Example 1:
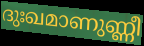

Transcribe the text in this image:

ദുഃഖമാണുണ്ണീ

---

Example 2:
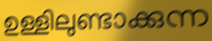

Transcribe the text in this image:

ഉള്ളിലുണ്ടാക്കുന്ന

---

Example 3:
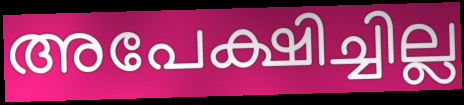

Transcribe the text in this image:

അപേക്ഷിച്ചില്ല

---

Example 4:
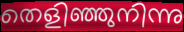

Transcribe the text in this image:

തെളിഞ്ഞുനിന്നു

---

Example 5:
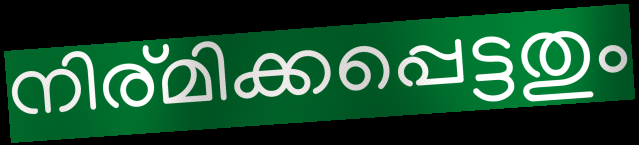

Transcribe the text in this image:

നിര്മിക്കപ്പെട്ടതും